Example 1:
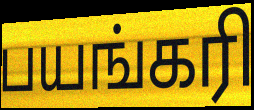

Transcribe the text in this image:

பயங்கரி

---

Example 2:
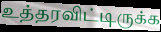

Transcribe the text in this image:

உத்தரவிட்டிருக்க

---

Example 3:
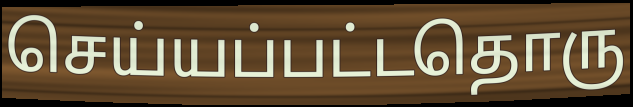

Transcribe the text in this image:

செய்யப்பட்டதொரு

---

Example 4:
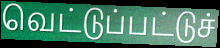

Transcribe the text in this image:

வெட்டுப்பட்டுச்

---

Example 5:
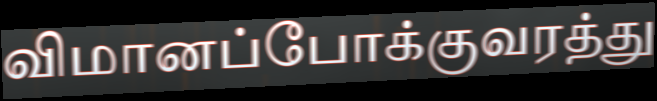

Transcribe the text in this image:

விமானப்போக்குவரத்து